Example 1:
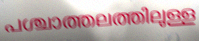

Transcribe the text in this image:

പശ്ചാത്തലത്തിലുള്ള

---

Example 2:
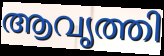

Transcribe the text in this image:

ആവൃത്തി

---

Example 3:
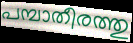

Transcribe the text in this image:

പമ്പാതീരത്തു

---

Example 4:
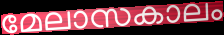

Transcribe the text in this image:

മേലാസകാലം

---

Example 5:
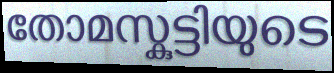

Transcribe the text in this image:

തോമസ്കുട്ടിയുടെ